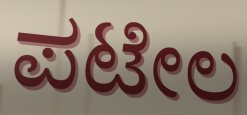
ಪಟೇಲ